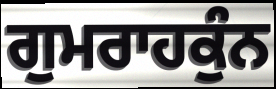
ਗੁਮਰਾਹਕੁੰਨ